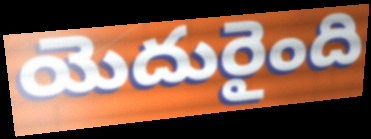
యెదురైంది